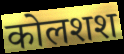
कोलशश